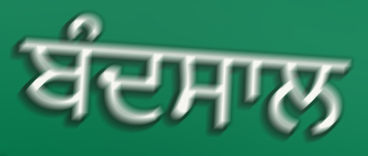
ਬੰਦਸਾਲ